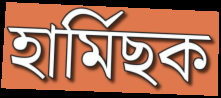
হাৰ্মিছক